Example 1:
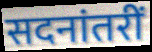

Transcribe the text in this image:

सदनांतरीं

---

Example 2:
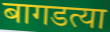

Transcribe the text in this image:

बागडत्या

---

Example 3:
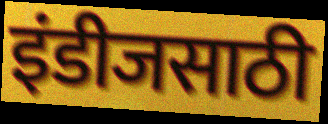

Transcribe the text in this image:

इंडीजसाठी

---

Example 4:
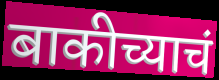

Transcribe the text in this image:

बाकीच्याचं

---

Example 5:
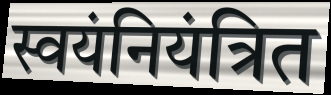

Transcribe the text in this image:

स्वयंनियंत्रित